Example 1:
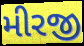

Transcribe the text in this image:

મીરજી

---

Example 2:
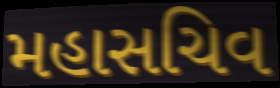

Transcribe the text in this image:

મહાસચિવ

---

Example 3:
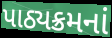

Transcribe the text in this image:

પાઠ્યક્રમનાં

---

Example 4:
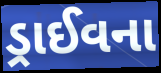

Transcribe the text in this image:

ડ્રાઈવના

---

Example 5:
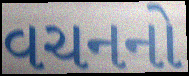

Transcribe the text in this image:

વચનનો